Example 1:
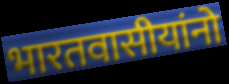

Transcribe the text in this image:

भारतवासीयांनो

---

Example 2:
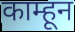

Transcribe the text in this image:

काम्हून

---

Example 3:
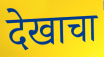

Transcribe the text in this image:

देखाचा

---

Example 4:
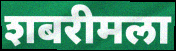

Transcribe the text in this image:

शबरीमला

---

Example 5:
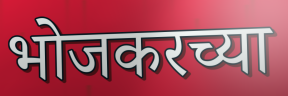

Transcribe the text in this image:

भोजकरच्या